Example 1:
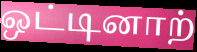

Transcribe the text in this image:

ஒட்டினாற்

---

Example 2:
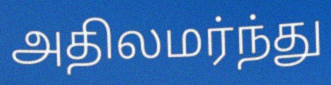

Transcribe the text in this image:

அதிலமர்ந்து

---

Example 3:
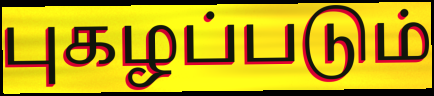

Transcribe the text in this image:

புகழப்படும்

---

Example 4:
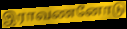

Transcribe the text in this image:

இராவணனோடு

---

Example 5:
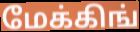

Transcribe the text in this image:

மேக்கிங்